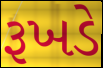
રૂખડે